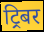
ट्रिबर